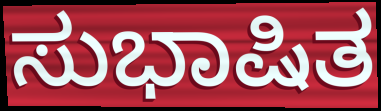
ಸುಭಾಷಿತ